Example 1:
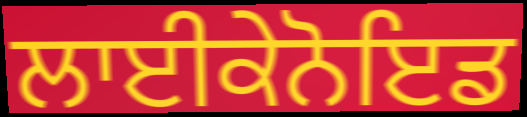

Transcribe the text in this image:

ਲਾਈਕੇਨੋਇਡ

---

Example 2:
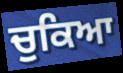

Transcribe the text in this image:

ਚੁਕਿਆ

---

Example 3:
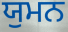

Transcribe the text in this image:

ਯੁਮਨ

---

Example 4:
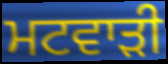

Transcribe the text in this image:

ਮਟਵਾੜੀ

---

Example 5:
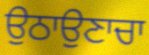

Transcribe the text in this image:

ਉਠਾਉਣਾਚਾ